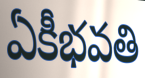
ఏకీభవతి